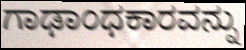
ಗಾಢಾಂಧಕಾರವನ್ನು